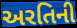
અરતિની